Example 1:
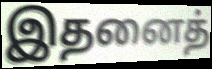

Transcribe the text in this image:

இதனைத்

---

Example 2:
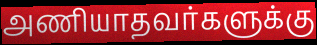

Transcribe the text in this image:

அணியாதவர்களுக்கு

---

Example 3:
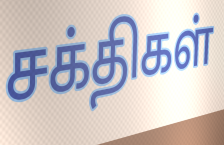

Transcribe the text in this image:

சக்திகள்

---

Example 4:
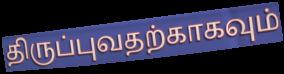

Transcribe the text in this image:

திருப்புவதற்காகவும்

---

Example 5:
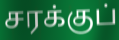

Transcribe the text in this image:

சரக்குப்